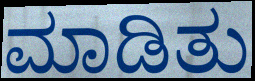
ಮಾಡಿತು